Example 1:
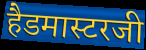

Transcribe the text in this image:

हैडमास्टरजी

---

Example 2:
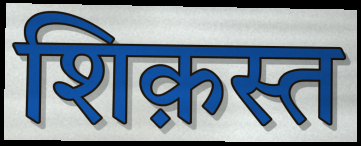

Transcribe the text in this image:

शिक़स्त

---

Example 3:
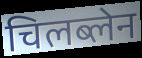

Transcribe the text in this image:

चिलब्लेन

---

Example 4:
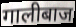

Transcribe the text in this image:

गालीबाज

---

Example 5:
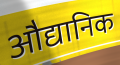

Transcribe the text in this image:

औद्यानिक